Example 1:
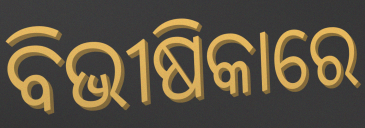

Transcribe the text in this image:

ବିଭୀଷିକାରେ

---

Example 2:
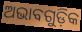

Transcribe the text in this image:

ଅଭାବଗୁଡ଼ିକ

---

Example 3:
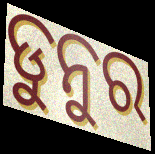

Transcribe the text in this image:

ଡୁନୁର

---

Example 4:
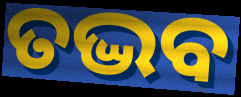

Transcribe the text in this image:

ତଦ୍ଭବ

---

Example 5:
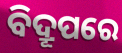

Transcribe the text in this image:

ବିଦ୍ରୂପରେ